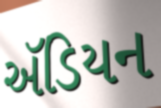
ઍંડિયન